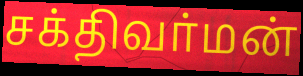
சக்திவர்மன்